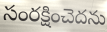
సంరక్షించెదను